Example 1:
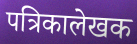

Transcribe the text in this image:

पत्रिकालेखक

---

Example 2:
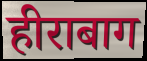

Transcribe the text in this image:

हीराबाग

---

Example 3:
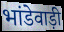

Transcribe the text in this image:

भांडेवाड़ी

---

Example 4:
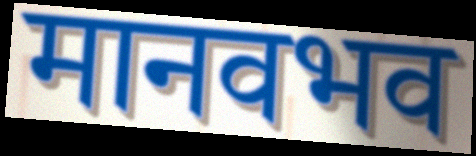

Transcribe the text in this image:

मानवभव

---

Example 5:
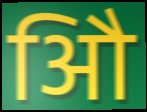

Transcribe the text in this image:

औि